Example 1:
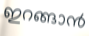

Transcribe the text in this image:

ഇറങ്ങാൻ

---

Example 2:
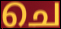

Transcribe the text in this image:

ചെ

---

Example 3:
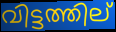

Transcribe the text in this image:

വിട്ടത്തില്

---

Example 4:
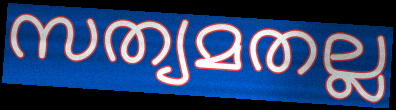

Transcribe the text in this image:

സത്യമതല്ല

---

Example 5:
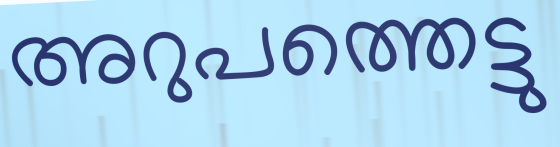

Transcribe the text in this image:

അറുപത്തെട്ടു